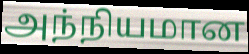
அந்நியமான